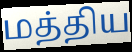
மத்திய